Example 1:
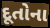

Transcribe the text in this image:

દૂતોના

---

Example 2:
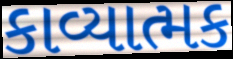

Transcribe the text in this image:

કાવ્યાત્મક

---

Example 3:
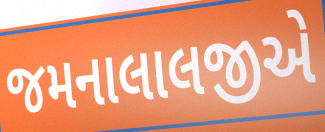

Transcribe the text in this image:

જમનાલાલજીએ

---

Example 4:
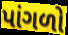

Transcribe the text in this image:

પાંગળો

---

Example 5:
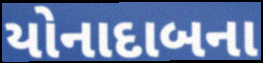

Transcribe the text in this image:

યોનાદાબના